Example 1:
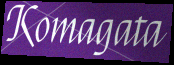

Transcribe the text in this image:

Komagata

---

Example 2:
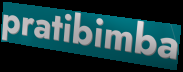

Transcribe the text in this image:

pratibimba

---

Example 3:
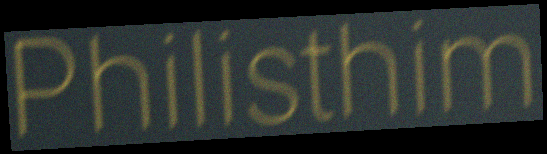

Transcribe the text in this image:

Philisthim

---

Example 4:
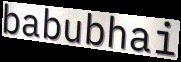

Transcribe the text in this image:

babubhai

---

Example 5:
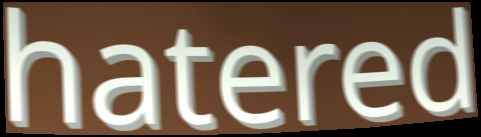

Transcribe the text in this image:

hatered